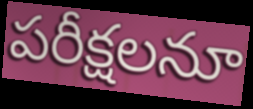
పరీక్షలనూ